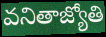
వనితాజ్యోతి